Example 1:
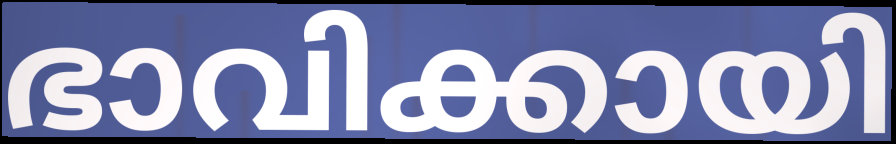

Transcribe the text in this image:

ഭാവിക്കായി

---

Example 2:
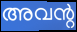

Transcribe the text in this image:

അവന്റ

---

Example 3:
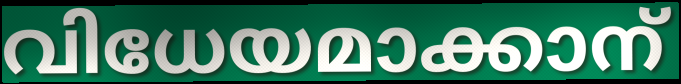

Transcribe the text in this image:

വിധേയമാക്കാന്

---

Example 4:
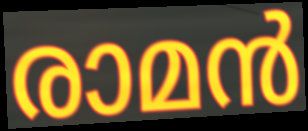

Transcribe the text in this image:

രാമൻ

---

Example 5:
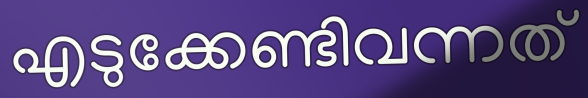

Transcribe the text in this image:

എടുക്കേണ്ടിവന്നത്